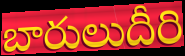
బారులుదీరి